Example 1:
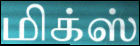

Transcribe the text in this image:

மிக்ஸ்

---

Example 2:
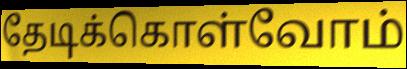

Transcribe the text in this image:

தேடிக்கொள்வோம்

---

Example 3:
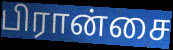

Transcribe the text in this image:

பிரான்சை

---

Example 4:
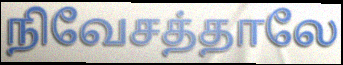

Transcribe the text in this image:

நிவேசத்தாலே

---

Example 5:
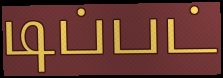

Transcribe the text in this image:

டிப்பட்